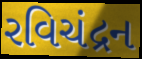
રવિચંદ્રન